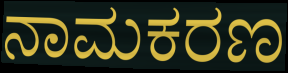
ನಾಮಕರಣ